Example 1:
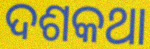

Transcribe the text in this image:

ଦଶକଥା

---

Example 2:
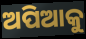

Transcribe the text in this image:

ଅପିଆକୁ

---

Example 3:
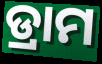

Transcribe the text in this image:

ଡ୍ରାମ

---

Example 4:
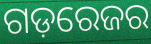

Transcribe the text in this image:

ଗଡ଼ରେଜର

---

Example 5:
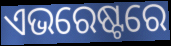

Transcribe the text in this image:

ଏଭରେଷ୍ଟରେ